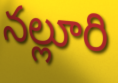
నల్లూరి